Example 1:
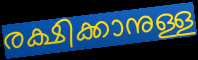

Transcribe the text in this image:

രക്ഷിക്കാനുള്ള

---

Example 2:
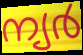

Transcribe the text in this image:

ന്യർ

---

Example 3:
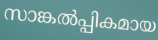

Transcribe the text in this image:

സാങ്കൽപ്പികമായ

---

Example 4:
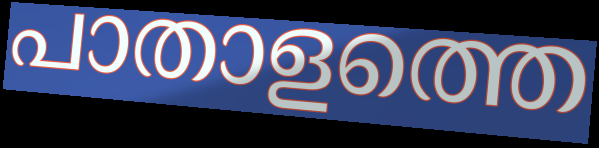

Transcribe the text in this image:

പാതാളത്തെ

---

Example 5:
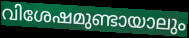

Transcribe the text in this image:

വിശേഷമുണ്ടായാലും